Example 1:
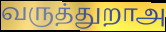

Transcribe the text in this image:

வருத்துறாஅ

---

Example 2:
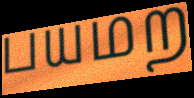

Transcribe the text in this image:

பயமற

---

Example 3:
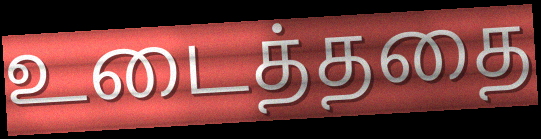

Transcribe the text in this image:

உடைத்ததை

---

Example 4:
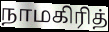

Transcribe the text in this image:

நாமகிரித்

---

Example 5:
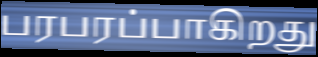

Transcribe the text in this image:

பரபரப்பாகிறது